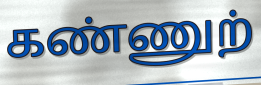
கண்ணுற்